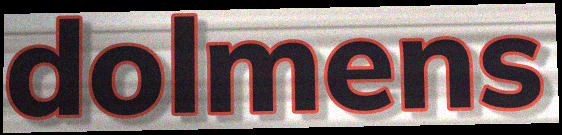
dolmens